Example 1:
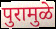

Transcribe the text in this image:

पुरामुळे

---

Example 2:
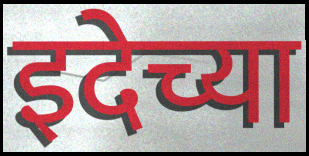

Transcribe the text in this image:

इदेच्या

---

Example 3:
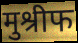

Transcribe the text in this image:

मुश्रीफ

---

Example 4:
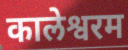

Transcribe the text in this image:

कालेश्वरम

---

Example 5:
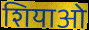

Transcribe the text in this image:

शियाओ